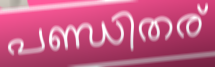
പണ്ഡിതര്